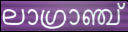
ലാഗ്രാഞ്ച്